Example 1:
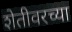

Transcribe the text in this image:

शेतीवरच्या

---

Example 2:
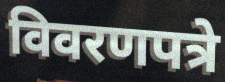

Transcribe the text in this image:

विवरणपत्रे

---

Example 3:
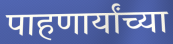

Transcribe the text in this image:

पाहणार्यांच्या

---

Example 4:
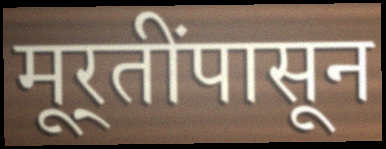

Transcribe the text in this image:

मूर्तींपासून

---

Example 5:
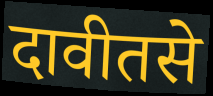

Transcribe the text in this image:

दावीतसे